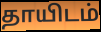
தாயிடம்